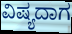
ವಿಷ್ಯದಾಗ